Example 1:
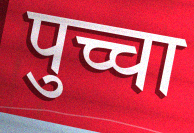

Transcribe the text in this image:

पुच्चा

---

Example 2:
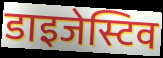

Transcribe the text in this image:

डाइजेस्टिव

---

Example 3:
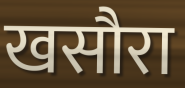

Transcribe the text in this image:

खसौरा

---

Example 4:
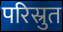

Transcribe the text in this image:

परिस्रुत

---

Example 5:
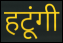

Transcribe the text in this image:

हटूंगी